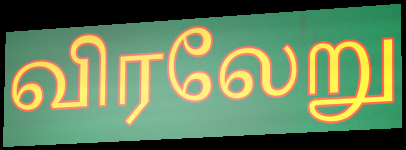
விரலேறு